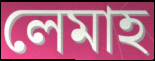
লেমাহ